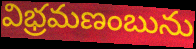
విభ్రమణంబును